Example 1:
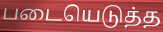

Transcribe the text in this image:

படையெடுத்த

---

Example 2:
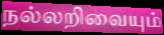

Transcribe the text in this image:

நல்லறிவையும்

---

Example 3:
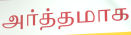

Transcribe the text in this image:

அர்த்தமாக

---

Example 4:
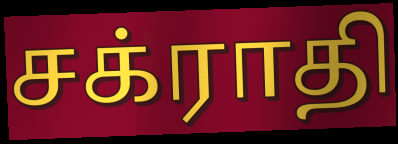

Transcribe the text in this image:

சக்ராதி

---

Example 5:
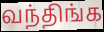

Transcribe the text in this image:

வந்திங்க